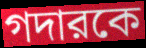
গদারকে